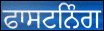
ਫਾਸਟਨਿੰਗ